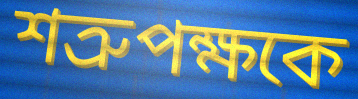
শত্রুপক্ষকে